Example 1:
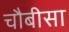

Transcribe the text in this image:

चौबीसा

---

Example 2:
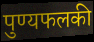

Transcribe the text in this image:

पुण्यफलकी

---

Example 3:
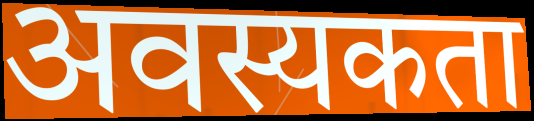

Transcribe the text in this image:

अवस्यकता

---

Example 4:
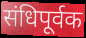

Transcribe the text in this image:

संधिपूर्वक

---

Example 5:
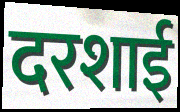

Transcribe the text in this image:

दरशाई